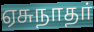
ஏசுநாதர்